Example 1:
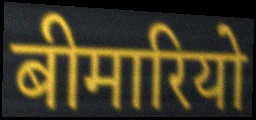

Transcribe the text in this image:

बीमारियो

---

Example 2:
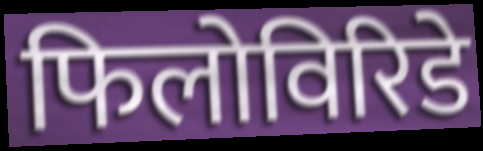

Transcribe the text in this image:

फिलोविरिडे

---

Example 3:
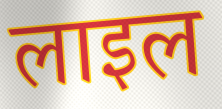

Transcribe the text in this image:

लाइल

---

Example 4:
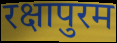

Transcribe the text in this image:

रक्षापुरम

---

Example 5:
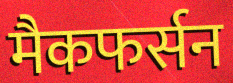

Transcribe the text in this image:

मैकफर्सन